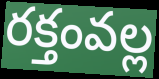
రక్తంవల్ల